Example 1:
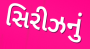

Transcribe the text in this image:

સિરીઝનું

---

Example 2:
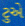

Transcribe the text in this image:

ટુએ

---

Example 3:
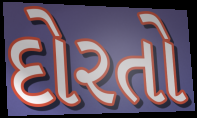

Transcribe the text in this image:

દોરતો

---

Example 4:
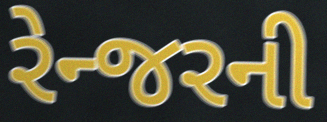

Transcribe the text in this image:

રેન્જરની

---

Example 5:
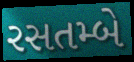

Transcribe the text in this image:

રસતમ્બે